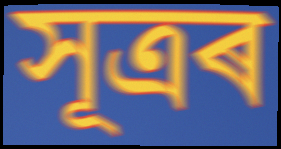
সূত্ৰৰ